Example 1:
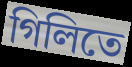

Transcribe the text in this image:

গিলিতে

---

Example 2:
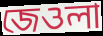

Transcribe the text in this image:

জেওলা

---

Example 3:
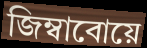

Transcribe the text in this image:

জিম্বাবোয়ে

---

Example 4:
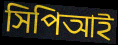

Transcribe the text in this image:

সিপিআই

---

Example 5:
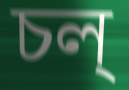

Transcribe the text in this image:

চল্